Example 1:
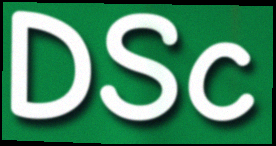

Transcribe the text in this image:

DSc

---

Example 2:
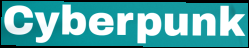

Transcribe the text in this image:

Cyberpunk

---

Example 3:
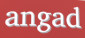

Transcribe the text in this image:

angad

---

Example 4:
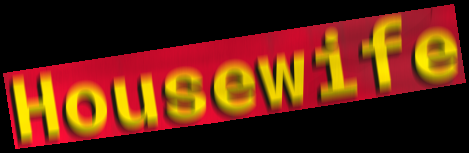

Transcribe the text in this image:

Housewife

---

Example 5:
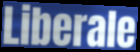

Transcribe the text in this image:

Liberale